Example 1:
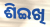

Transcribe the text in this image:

ଶିଇଖି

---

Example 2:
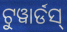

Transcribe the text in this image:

ଟୁୱାର୍ଡସ୍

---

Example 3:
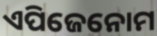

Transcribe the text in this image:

ଏପିଜେନୋମ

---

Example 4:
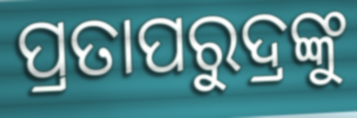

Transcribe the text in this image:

ପ୍ରତାପରୁଦ୍ରଙ୍କୁ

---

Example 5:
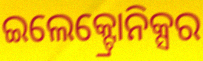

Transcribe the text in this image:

ଇଲେକ୍ଟ୍ରୋନିକ୍ସର